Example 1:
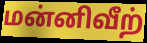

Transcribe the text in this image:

மன்னிவீற்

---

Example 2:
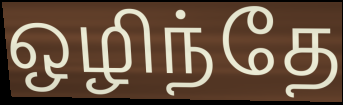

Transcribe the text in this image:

ஒழிந்தே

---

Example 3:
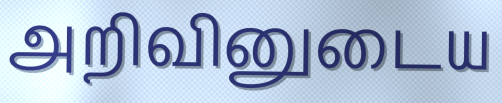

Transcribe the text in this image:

அறிவினுடைய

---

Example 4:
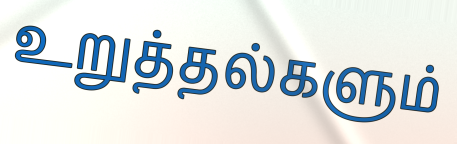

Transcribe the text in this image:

உறுத்தல்களும்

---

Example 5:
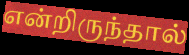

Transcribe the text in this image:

என்றிருந்தால்